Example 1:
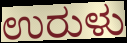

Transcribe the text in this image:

ಉರುಳು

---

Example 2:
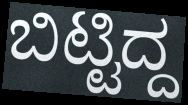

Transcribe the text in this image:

ಬಿಟ್ಟಿದ್ದ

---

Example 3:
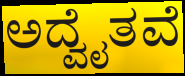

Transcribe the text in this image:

ಅದ್ವೈತವೆ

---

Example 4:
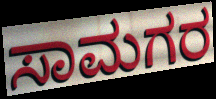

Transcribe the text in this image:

ಸಾಮಗರ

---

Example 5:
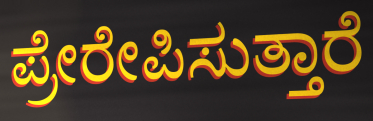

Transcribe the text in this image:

ಪ್ರೇರೇಪಿಸುತ್ತಾರೆ